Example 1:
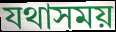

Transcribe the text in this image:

যথাসময়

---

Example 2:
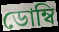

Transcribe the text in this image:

ডোম্বি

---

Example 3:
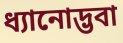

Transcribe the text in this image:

ধ্যানোদ্ভবা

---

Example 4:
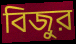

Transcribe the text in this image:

বিজুর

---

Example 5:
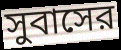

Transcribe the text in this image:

সুবাসের